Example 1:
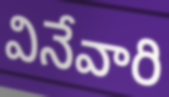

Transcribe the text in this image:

వినేవారి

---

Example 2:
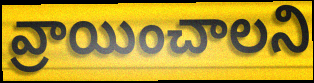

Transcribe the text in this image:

వ్రాయించాలని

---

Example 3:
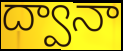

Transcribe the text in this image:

ద్వానా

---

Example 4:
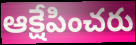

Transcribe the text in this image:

ఆక్షేపించరు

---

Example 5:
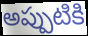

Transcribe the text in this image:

అప్పుటికి